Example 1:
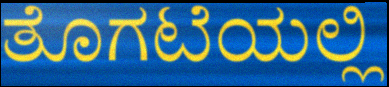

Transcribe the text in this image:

ತೊಗಟೆಯಲ್ಲಿ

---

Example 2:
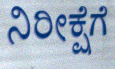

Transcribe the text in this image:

ನಿರೀಕ್ಷೆಗೆ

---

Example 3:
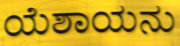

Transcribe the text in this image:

ಯೆಶಾಯನು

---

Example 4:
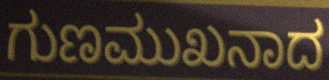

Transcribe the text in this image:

ಗುಣಮುಖನಾದ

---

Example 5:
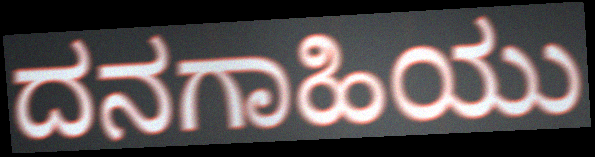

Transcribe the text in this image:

ದನಗಾಹಿಯು